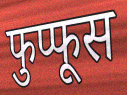
फुप्फूस